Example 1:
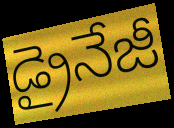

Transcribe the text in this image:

డ్రైనేజీ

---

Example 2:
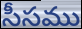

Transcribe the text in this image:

సీసము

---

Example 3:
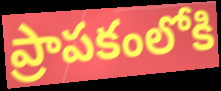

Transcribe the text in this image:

ప్రాపకంలోకి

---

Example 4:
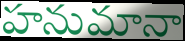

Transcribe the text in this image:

హనుమానా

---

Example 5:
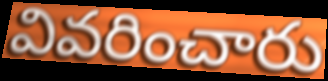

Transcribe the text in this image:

వివరించారు